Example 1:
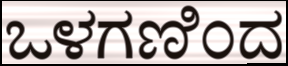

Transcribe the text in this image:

ಒಳಗಣಿಂದ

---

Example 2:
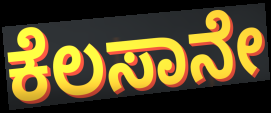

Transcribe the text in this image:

ಕೆಲಸಾನೇ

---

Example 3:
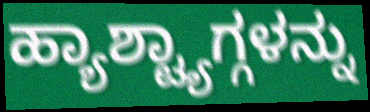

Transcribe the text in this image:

ಹ್ಯಾಶ್ಟ್ಯಾಗ್ಗಳನ್ನು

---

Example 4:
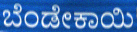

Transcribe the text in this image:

ಬೆಂಡೇಕಾಯಿ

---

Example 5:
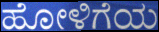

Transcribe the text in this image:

ಹೋಳಿಗೆಯ